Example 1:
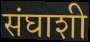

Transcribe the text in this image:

संघाशी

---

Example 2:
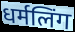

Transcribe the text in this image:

धर्मलिंग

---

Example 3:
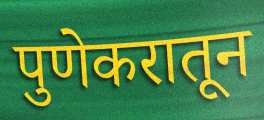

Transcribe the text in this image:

पुणेकरातून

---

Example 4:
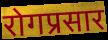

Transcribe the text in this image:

रोगप्रसार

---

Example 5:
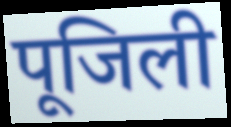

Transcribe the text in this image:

पूजिली